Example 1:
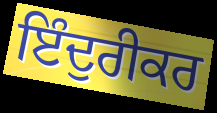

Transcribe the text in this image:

ਇੰਦੁਰੀਕਰ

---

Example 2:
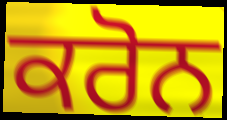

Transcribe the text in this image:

ਕਰੋਨ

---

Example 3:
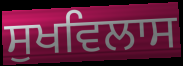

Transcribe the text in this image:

ਸੁਖਵਿਲਾਸ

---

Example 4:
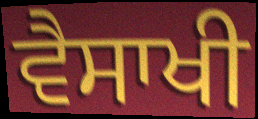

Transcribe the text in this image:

ਵੈਸਾਖੀ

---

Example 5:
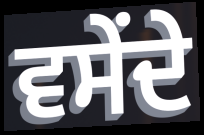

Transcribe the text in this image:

ਵਸੇਂਦੇ